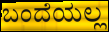
ಬಂದೆಯಲ್ಲ